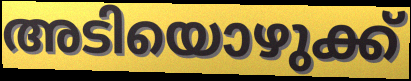
അടിയൊഴുക്ക്